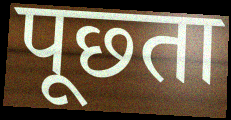
पूछ्ता